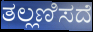
ತಲ್ಲಣಿಸದೆ